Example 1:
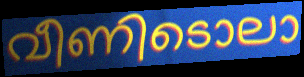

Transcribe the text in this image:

വീണിടൊലാ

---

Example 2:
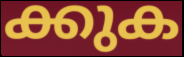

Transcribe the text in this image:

ക്കുക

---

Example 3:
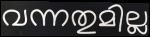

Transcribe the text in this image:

വന്നതുമില്ല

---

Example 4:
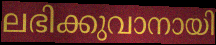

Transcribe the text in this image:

ലഭിക്കുവാനായി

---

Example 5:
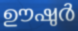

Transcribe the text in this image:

ഊഷുർ